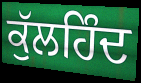
ਕੁੱਲਹਿੰਦ